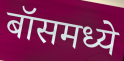
बॉसमध्ये